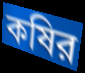
কষির